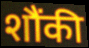
शौंकी